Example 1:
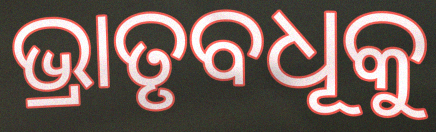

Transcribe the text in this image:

ଭ୍ରାତୃବଧୂକୁ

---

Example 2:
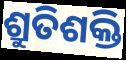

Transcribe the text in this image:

ଶ୍ରୁତିଶକ୍ତି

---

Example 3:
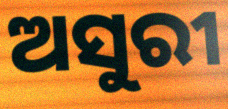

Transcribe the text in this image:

ଅସୁରୀ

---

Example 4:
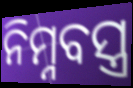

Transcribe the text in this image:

ନିମ୍ନବସ୍ତ୍ର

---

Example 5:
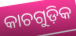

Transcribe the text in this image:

କାଚଗୁଡ଼ିକ